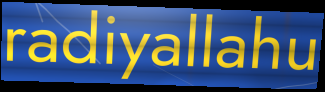
radiyallahu